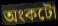
অংকটো